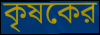
কৃষকের